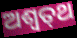
ଅଶ୍ଵତ୍‌ଥ